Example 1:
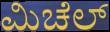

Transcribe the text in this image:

ಮಿಚೆಲ್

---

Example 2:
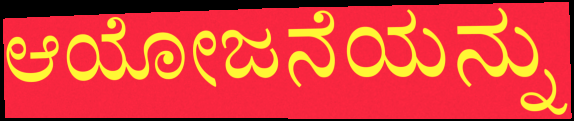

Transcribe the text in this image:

ಆಯೋಜನೆಯನ್ನು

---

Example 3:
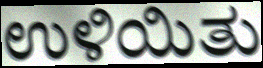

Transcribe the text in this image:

ಉಳಿಯಿತು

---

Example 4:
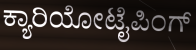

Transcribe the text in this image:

ಕ್ಯಾರಿಯೋಟೈಪಿಂಗ್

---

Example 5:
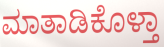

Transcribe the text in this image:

ಮಾತಾಡಿಕೊಳ್ತಾ